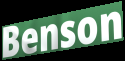
Benson